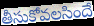
తీసుకోవలసిందే